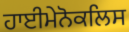
ਹਾਈਮੇਨੋਕਲਿਸ